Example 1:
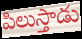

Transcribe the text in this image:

పిలుస్తాడు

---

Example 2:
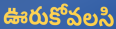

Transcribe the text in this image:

ఊరుకోవలసి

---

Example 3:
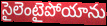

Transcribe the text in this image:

సైలెంటైపోయాను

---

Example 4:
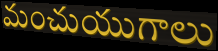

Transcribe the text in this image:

మంచుయుగాలు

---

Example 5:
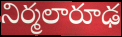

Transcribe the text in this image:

నిర్మలారూఢ